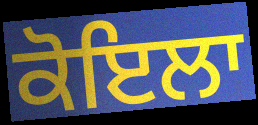
ਕੋਇਲਾ